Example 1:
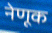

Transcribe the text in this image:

नेणूक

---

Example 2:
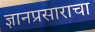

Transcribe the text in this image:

ज्ञानप्रसाराचा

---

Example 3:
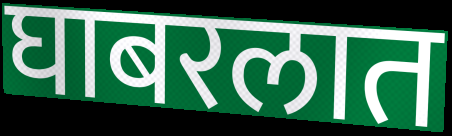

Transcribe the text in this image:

घाबरलात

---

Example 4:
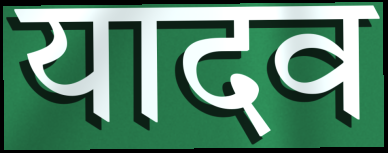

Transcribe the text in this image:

यादव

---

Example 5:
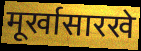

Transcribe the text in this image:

मूर्खासारखे